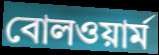
বোলওয়ার্ম